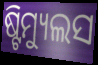
ଷ୍ଟିମ୍ୟୁଲସ